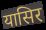
यासिर